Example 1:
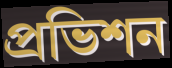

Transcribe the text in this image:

প্রভিশন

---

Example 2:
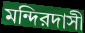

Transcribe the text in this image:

মন্দিরদাসী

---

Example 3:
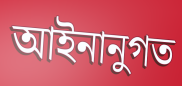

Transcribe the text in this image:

আইনানুগত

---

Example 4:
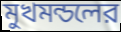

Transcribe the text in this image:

মুখমন্ডলের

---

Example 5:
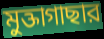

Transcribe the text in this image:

মুক্তাগাছার